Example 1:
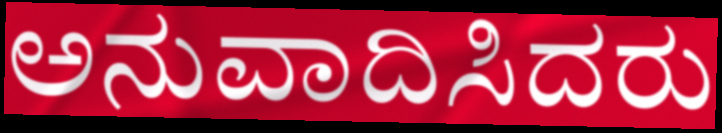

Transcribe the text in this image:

ಅನುವಾದಿಸಿದರು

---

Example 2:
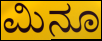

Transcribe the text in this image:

ಮಿನೂ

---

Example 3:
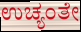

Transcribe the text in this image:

ಉಚ್ಯಂತೇ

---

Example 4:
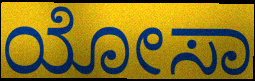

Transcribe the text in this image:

ಯೋಸಾ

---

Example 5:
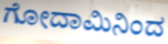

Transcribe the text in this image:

ಗೋದಾಮಿನಿಂದ